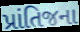
પ્રાંતિજના